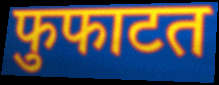
फुफाटत